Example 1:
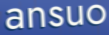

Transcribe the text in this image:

ansuo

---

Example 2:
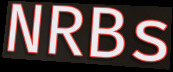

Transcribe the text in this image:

NRBs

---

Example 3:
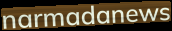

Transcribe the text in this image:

narmadanews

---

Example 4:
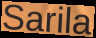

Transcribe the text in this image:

Sarila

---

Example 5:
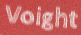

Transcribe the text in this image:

Voight